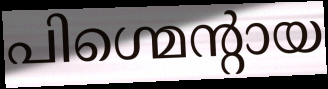
പിഗ്മെന്റായ